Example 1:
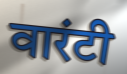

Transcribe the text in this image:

वारंटी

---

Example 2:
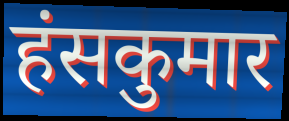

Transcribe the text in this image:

हंसकुमार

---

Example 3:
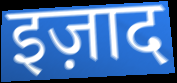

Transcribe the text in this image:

इज़ाद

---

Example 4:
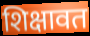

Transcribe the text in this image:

शिक्षावत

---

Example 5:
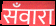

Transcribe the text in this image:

सँवारा